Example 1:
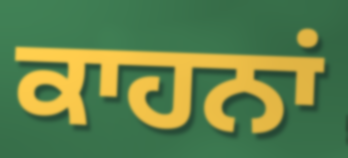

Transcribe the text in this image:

ਕਾਹਨਾਂ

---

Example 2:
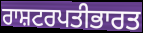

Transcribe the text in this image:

ਰਾਸ਼ਟਰਪਤੀਭਾਰਤ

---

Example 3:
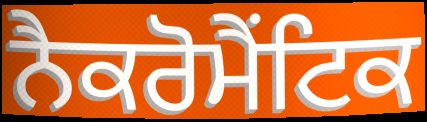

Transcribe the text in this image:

ਨੈਕਰੋਮੈਂਟਿਕ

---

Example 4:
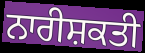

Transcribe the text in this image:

ਨਾਰੀਸ਼ਕਤੀ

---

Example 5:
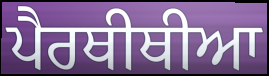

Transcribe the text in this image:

ਪੈਰਥੀਥੀਆ